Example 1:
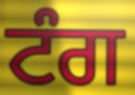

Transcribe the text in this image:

ਟੰਗ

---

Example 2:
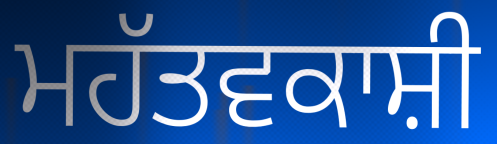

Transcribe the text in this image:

ਮਹੱਤਵਕਾਸ਼ੀ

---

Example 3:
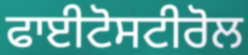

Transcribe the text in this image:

ਫਾਈਟੋਸਟੀਰੋਲ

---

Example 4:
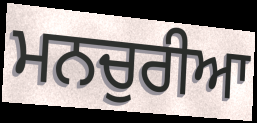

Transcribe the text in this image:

ਮਨਚੁਰੀਆ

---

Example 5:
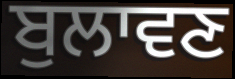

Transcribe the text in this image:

ਬੁਲਾਵਣ